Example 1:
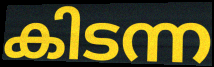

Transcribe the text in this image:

കിടന്ന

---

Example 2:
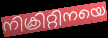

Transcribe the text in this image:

നിക്രിറ്റിനയെ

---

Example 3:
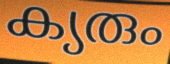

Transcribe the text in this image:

ക്യരും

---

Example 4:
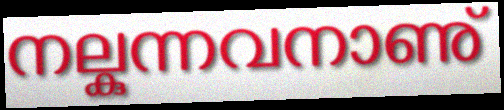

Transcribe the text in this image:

നല്കുന്നവനാണു്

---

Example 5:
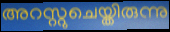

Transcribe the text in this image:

അറസ്റ്റുചെയ്തിരുന്നു